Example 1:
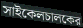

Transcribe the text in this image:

সাইকেলচালকের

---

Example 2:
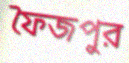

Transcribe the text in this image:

ফৈজপুর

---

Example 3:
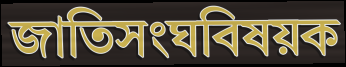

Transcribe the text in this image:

জাতিসংঘবিষয়ক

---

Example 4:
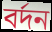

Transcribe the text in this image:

বর্দন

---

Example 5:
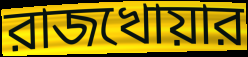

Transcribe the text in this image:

রাজখোয়ার